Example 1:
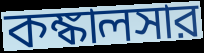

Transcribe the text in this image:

কঙ্কালসার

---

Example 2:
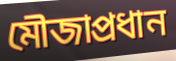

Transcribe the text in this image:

মৌজাপ্রধান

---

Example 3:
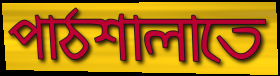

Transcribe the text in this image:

পাঠশালাতে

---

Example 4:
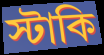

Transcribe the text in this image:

স্টাকি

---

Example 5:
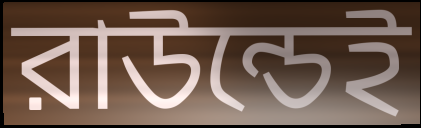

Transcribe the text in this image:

রাউন্ডেই